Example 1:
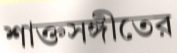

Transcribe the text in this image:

শাক্তসঙ্গীতের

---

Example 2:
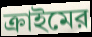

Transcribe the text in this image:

ক্রাইমের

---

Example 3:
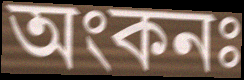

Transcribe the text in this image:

অংকনঃ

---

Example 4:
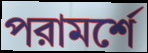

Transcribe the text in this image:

পরামর্শে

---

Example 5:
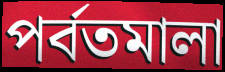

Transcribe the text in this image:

পর্বতমালা